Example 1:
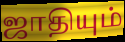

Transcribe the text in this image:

ஜாதியும்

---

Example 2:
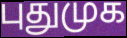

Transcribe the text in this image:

புதுமுக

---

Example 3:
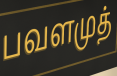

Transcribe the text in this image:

பவளமுத்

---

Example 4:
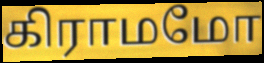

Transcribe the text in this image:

கிராமமோ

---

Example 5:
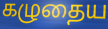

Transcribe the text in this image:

கழுதைய